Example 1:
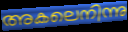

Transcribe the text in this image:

അകലെനിന്നു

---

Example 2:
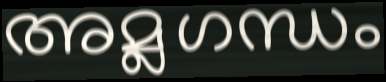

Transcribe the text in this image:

അമ്ലഗന്ധം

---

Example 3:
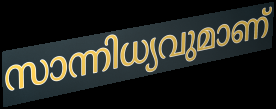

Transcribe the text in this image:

സാന്നിധ്യവുമാണ്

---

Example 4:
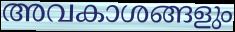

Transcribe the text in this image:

അവകാശങ്ങളും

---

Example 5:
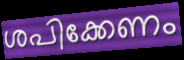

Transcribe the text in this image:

ശപിക്കേണം